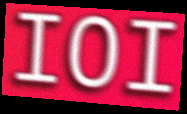
IOI